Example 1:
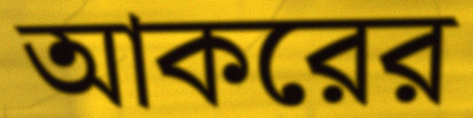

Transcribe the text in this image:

আকরের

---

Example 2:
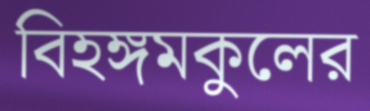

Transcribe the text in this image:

বিহঙ্গমকুলের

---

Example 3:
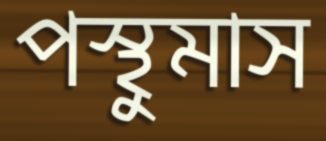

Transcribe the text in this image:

পস্থুমাস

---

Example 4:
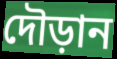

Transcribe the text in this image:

দৌড়ান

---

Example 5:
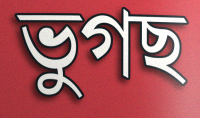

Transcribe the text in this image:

ভুগছ